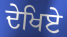
ਦੇਖਿਏ